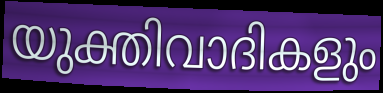
യുക്തിവാദികളും